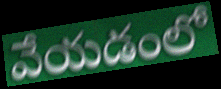
వేయడంలో